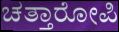
ಚತ್ತಾರೋಪಿ